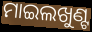
ମାଇଲଖୁଣ୍ଟ